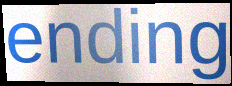
ending